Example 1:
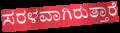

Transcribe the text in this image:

ಸರಳವಾಗಿರುತ್ತಾರೆ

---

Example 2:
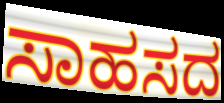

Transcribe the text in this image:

ಸಾಹಸದ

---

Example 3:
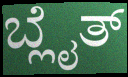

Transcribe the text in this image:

ಬ್ಲೈತ್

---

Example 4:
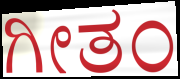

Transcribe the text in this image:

ಗೀತಂ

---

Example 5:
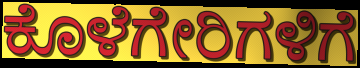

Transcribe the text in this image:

ಕೊಳೆಗೇರಿಗಳಿಗೆ